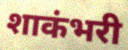
शाकंभरी